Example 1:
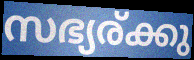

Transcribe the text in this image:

സഭ്യര്ക്കു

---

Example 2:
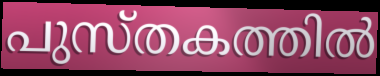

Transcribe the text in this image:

പുസ്തകത്തിൽ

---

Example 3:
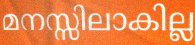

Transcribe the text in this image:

മനസ്സിലാകില്ല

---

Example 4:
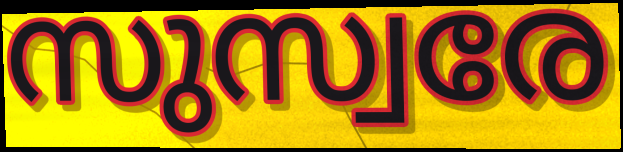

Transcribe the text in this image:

സുസ്വരേ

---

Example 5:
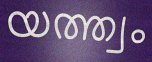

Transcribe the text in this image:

യത്ത്വം